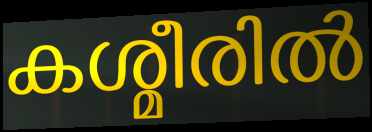
കശ്മീരിൽ